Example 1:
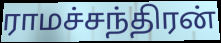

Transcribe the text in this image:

ராமச்சந்திரன்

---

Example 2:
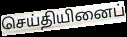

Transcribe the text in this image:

செய்தியினைப்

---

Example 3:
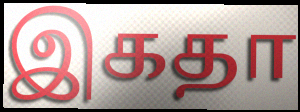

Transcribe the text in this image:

இகதா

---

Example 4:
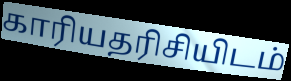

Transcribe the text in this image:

காரியதரிசியிடம்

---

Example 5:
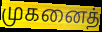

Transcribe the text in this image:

முகனைத்